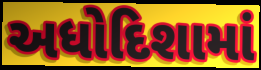
અધોદિશામાં